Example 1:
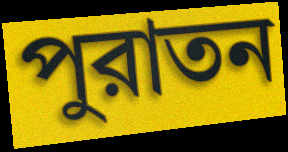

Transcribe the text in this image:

পুরাতন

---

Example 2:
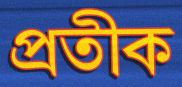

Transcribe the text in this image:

প্রতীক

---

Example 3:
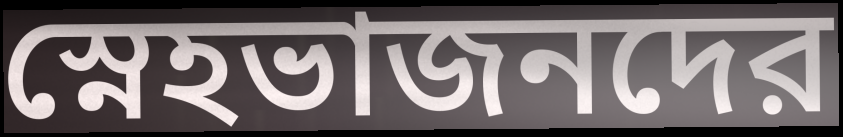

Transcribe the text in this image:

স্নেহভাজনদের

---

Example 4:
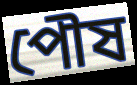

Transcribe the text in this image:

পৌষ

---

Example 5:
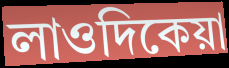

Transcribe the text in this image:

লাওদিকেয়া